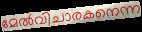
മേൽവിചാരകനെന്ന